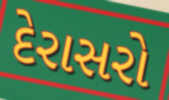
દેરાસરો